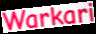
Warkari